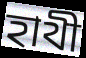
হাথী